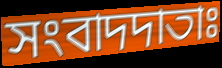
সংবাদদাতাঃ